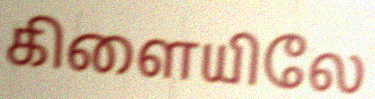
கிளையிலே